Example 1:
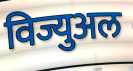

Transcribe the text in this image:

विज्युअल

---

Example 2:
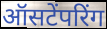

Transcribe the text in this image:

ऑसटेंपरिंग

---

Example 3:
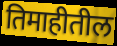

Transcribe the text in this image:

तिमाहीतील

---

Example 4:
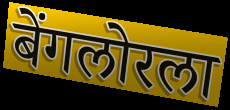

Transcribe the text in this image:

बेंगलोरला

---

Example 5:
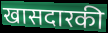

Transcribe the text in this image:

खासदारकी